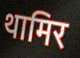
थामिर